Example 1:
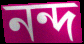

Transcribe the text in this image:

নন্দ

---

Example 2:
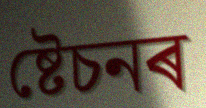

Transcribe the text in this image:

ষ্টেচনৰ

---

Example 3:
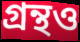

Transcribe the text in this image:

গ্ৰন্থও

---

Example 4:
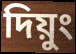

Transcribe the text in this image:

দিয়ুং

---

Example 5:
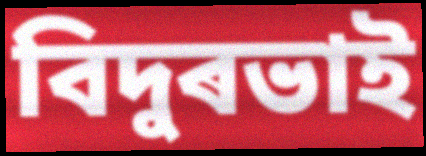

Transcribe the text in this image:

বিদুৰভাই